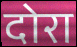
दोरा